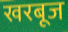
खरबूज